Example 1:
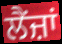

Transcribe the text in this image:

ਲੈਂਜ਼ਾਂ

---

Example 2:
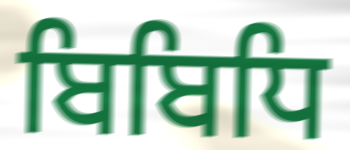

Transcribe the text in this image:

ਬਿਬਿਧਿ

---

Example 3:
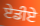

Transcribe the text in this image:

ਏਡੀਏ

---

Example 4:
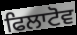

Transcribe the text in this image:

ਫਿਲਾਟੋਵ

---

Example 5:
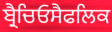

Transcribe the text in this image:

ਬ੍ਰੈਚਿਓਸੈਫਲਿਕ